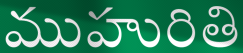
ముహురితి